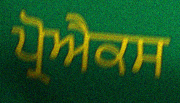
ਪ੍ਰੋਐਕਸ